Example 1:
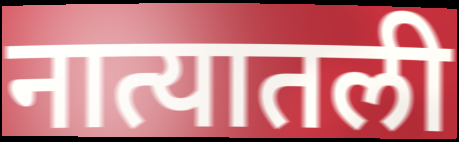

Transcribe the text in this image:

नात्यातली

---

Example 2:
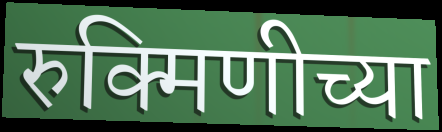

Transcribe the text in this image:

रुक्मिणीच्या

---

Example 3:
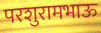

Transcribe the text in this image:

परशुरामभाऊ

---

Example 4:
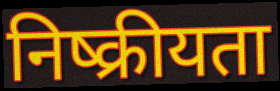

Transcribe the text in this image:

निष्क्रीयता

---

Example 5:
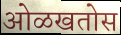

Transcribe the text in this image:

ओळखतोस